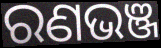
ରଣଭଞ୍ଜ